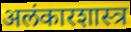
अलंकारशास्त्र